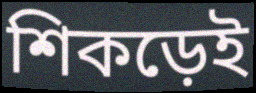
শিকড়েই